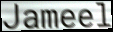
Jameel